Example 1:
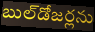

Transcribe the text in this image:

బుల్‌డోజర్లను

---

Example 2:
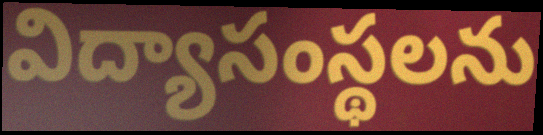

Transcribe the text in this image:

విద్యాసంస్థలను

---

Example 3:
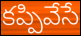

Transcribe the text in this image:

కప్పివేసే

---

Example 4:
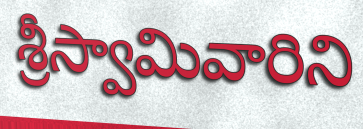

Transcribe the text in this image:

శ్రీస్వామివారిని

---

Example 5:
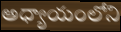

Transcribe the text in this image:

అధ్యాయంలోని